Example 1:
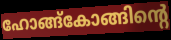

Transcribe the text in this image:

ഹോങ്ങ്കോങ്ങിന്റെ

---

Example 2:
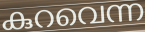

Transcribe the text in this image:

കുറവെന്ന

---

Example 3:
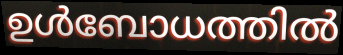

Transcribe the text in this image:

ഉൾബോധത്തിൽ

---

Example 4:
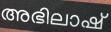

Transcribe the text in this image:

അഭിലാഷ്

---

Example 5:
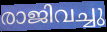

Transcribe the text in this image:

രാജിവച്ചു